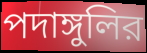
পদাঙ্গুলির